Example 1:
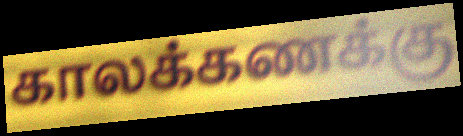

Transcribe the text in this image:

காலக்கணக்கு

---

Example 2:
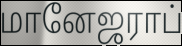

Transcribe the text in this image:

மானேஜராப்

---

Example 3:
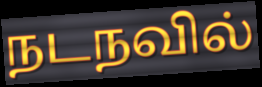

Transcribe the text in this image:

நடநவில்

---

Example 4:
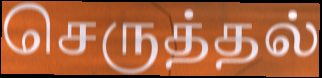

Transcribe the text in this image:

செருத்தல்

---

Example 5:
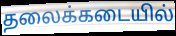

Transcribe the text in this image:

தலைக்கடையில்